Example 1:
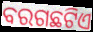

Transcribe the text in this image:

ବରଗଛଟିଏ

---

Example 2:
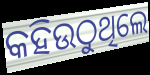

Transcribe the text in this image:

କହିଉଠୁଥିଲେ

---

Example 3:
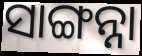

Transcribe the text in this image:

ସାଙ୍ଗନ୍ନା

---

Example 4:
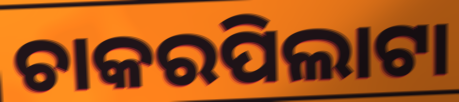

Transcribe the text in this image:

ଚାକରପିଲାଟା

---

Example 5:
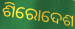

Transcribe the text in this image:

ଶିରୋଦେଶ